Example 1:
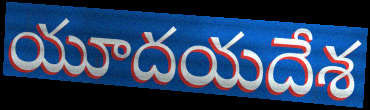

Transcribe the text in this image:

యూదయదేశ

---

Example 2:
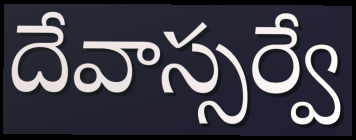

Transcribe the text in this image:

దేవాస్సర్వే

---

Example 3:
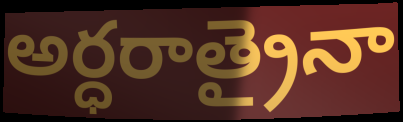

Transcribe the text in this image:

అర్ధరాత్రైనా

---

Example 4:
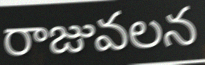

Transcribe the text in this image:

రాజువలన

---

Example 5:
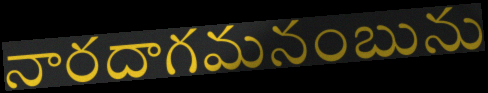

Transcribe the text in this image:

నారదాగమనంబును